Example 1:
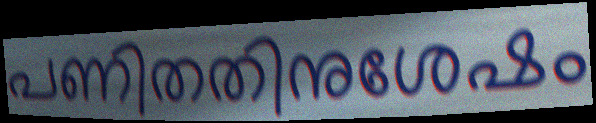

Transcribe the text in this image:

പണിതതിനുശേഷം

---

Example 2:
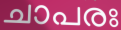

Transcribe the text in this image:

ചാപരഃ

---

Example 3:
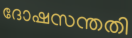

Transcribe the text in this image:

ദോഷസന്തതി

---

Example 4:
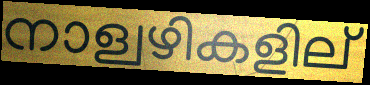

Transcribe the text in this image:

നാള്വഴികളില്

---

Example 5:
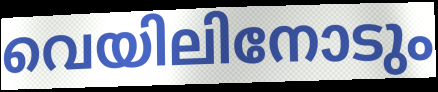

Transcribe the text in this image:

വെയിലിനോടും